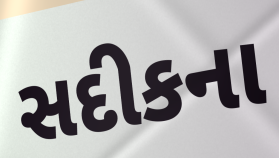
સદીકના